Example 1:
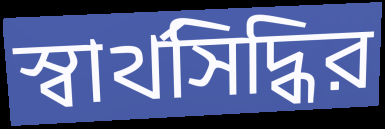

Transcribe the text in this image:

স্বার্থসিদ্ধির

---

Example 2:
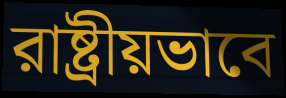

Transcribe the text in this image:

রাষ্ট্রীয়ভাবে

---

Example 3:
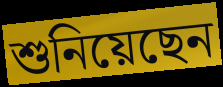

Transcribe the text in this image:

শুনিয়েছেন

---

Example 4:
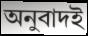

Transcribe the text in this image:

অনুবাদই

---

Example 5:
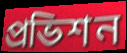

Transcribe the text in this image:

প্রভিশন